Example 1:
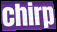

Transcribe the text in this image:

chirp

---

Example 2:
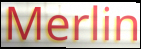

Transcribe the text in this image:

Merlin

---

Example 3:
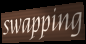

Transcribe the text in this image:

swapping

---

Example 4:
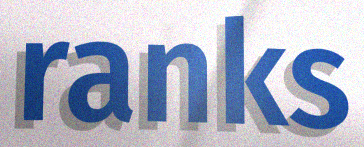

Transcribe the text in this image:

ranks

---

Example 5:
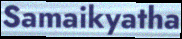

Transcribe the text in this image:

Samaikyatha